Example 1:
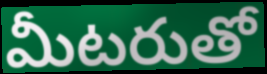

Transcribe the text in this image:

మీటరుతో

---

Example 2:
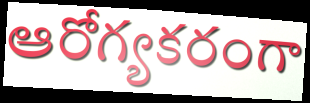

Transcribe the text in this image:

ఆరోగ్యకరంగా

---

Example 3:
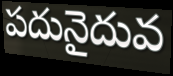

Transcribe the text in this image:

పదునైదువ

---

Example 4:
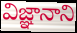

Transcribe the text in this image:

విజ్ఞానాని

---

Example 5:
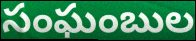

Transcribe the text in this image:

సంఘంబుల